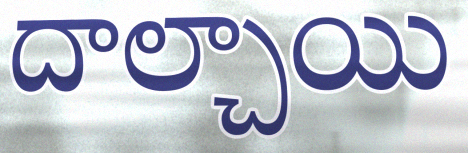
దాల్చాయి